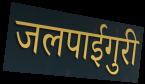
जलपाईगुरी